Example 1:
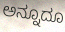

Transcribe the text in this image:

ಅನ್ನೂದೂ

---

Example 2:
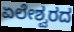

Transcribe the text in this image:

ಏಲೇಶ್ವರದ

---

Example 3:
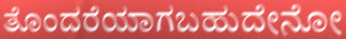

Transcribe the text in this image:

ತೊಂದರೆಯಾಗಬಹುದೇನೋ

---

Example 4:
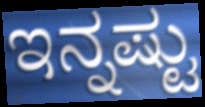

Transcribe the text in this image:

ಇನ್ನಷ್ಟು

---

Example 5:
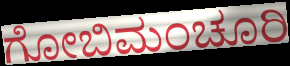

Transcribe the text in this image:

ಗೋಬಿಮಂಚೂರಿ